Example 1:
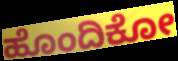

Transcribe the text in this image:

ಹೊಂದಿಕೋ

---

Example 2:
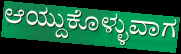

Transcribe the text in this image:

ಆಯ್ದುಕೊಳ್ಳುವಾಗ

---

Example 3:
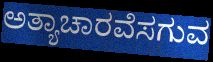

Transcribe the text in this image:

ಅತ್ಯಾಚಾರವೆಸಗುವ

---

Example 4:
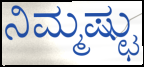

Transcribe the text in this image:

ನಿಮ್ಮಷ್ಟು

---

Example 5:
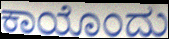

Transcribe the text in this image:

ಕಾಯೊಂದು